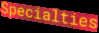
Specialties